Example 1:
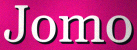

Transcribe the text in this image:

Jomo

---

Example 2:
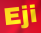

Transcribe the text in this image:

Eji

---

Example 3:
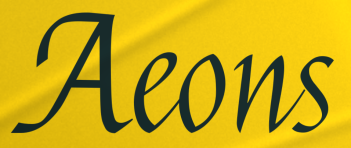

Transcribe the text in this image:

Aeons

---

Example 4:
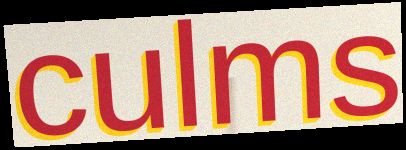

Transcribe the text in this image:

culms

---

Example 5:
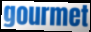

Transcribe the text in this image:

gourmet